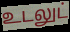
உடலுட்